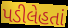
પડીલેહતાં